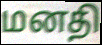
மனதி